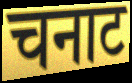
चनाट